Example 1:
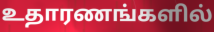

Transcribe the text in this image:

உதாரணங்களில்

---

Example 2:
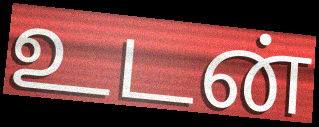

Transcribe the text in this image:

உடன்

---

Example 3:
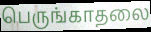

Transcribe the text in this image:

பெருங்காதலை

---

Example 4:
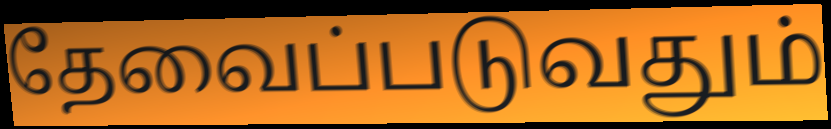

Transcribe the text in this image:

தேவைப்படுவதும்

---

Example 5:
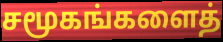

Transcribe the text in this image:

சமூகங்களைத்